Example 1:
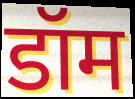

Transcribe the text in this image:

डॉम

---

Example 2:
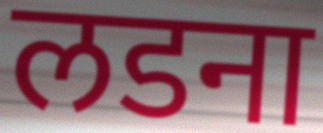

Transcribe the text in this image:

लडना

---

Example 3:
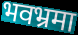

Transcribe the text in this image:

भवभ्रमा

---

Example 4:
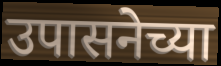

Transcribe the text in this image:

उपासनेच्या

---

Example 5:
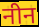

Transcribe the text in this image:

नीन